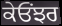
ਕੇਓਂਝਰ